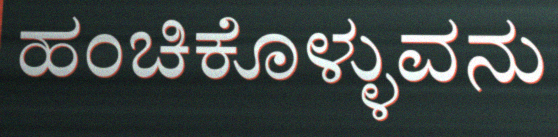
ಹಂಚಿಕೊಳ್ಳುವನು